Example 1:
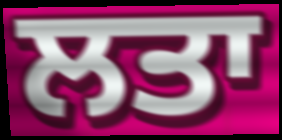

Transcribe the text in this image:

ਲਤਾ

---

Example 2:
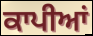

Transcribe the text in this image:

ਕਾਪੀਆਂ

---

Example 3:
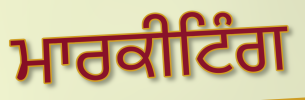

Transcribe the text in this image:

ਮਾਰਕੀਟਿੰਗ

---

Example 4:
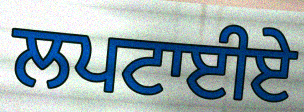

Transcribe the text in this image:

ਲਪਟਾਈਏ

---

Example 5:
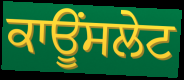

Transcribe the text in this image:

ਕਾਊਂਸਲੇਟ